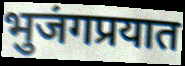
भुजंगप्रयात